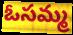
ఓసమ్మ